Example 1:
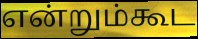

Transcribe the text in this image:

என்றும்கூட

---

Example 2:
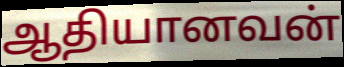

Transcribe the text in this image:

ஆதியானவன்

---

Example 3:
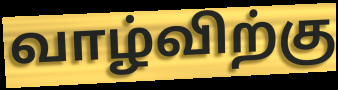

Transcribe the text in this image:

வாழ்விற்கு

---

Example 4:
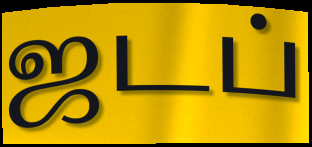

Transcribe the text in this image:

ஜடப்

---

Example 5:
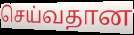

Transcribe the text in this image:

செய்வதான